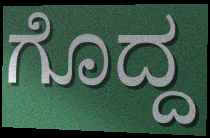
ಗೊದ್ದ